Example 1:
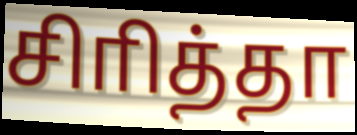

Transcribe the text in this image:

சிரித்தா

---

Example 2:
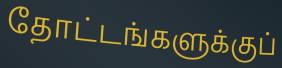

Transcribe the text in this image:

தோட்டங்களுக்குப்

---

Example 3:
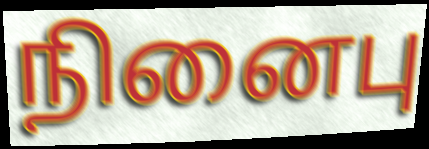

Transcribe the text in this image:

நினைபு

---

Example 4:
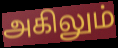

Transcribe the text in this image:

அகிலும்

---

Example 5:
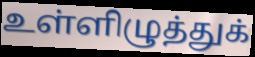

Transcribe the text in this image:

உள்ளிழுத்துக்